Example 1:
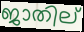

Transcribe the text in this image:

ജാതില്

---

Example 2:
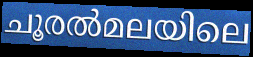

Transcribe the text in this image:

ചൂരൽമലയിലെ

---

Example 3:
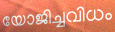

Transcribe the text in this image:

യോജിച്ചവിധം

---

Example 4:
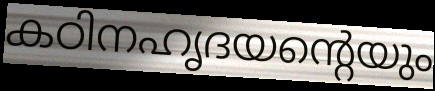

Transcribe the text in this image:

കഠിനഹൃദയന്റെയും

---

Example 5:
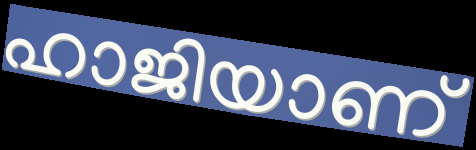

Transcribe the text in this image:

ഹാജിയാണ്